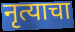
नृत्याचा